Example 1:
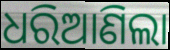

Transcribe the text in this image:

ଧରିଆଣିଲା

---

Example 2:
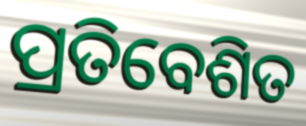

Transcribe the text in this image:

ପ୍ରତିବେଶିତ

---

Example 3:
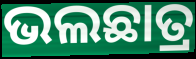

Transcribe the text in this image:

ଭଲଛାତ୍ର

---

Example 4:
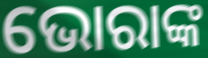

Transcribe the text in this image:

ଭୋରାଙ୍କ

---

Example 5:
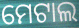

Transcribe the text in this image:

ମେଟାଲ